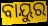
ବାୟୁର